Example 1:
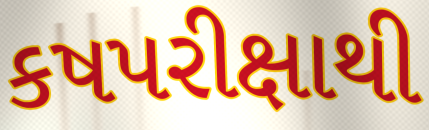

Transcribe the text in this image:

કષપરીક્ષાથી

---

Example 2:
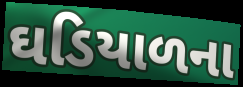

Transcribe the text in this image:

ઘડિયાળના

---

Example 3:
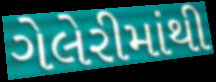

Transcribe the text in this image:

ગેલેરીમાંથી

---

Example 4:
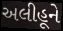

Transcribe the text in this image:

અલીહૂને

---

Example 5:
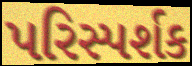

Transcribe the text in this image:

પરિસ્પર્શક